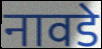
नावडे